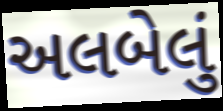
અલબેલું